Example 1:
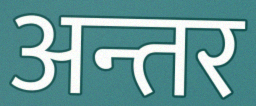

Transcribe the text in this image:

अन्‍तर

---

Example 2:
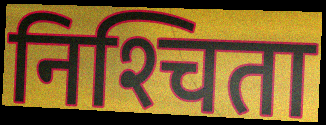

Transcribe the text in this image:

निश्चिता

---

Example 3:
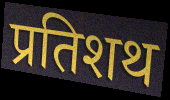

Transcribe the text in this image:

प्रतिशथ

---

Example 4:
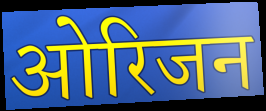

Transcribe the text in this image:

ओरिजन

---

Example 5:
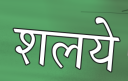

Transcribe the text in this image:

शलये